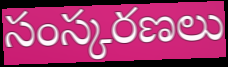
సంస్కరణలు